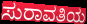
ಸುರಾವತಿಯ